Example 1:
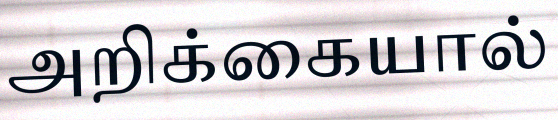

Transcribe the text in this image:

அறிக்கையால்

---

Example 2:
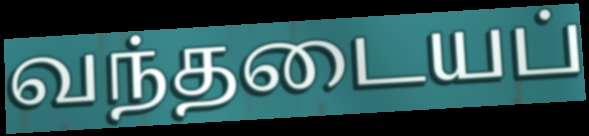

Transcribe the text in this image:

வந்தடையப்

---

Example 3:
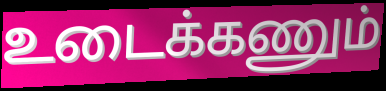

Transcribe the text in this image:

உடைக்கணும்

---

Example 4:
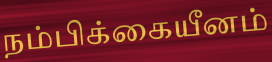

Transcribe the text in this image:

நம்பிக்கையீனம்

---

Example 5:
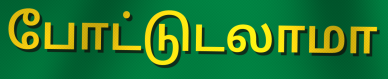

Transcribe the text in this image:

போட்டுடலாமா